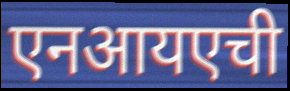
एनआयएची